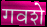
गवशे